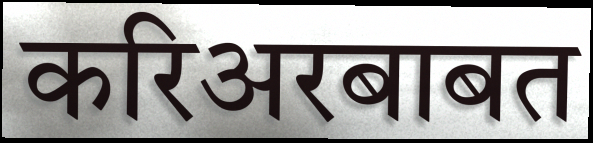
करिअरबाबत